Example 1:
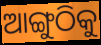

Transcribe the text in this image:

ଆଙ୍ଗୁଠିକୁ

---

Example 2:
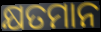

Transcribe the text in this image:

କ୍ଷତମାନ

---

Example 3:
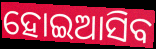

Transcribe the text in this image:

ହୋଇଆସିବ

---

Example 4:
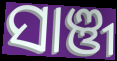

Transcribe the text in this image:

ସାଞ୍ଜ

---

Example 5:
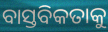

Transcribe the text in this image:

ବାସ୍ତବିକତାକୁ